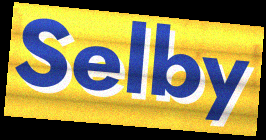
Selby